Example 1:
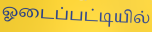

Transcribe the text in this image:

ஓடைப்பட்டியில்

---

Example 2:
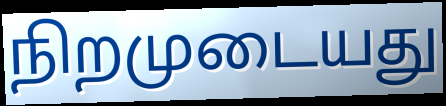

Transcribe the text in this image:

நிறமுடையது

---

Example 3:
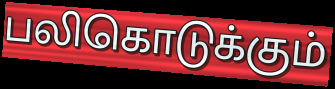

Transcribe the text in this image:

பலிகொடுக்கும்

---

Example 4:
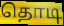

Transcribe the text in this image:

தொடி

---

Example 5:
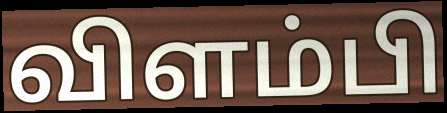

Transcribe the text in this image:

விளம்பி